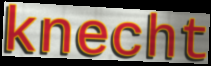
knecht